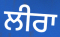
ਲੀਰਾ